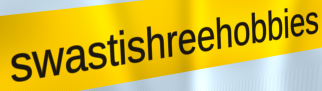
swastishreehobbies